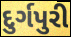
દુર્ગપુરી